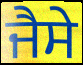
ਜੈਸੇ